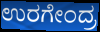
ಉರಗೇಂದ್ರ